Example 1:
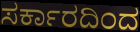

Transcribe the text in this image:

ಸರ್ಕಾರದಿಂದ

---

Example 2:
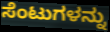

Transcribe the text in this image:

ಸೆಂಟುಗಳನ್ನು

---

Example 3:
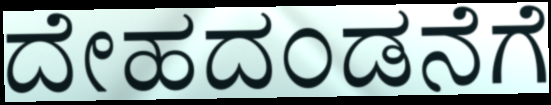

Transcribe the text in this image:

ದೇಹದಂಡನೆಗೆ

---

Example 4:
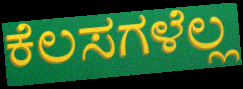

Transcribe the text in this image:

ಕೆಲಸಗಳೆಲ್ಲ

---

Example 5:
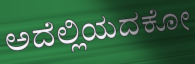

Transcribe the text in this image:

ಅದೆಲ್ಲಿಯದಕೋ